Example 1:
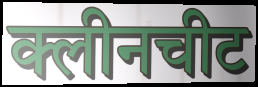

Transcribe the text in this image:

क्लीनचीट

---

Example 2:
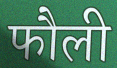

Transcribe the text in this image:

फौली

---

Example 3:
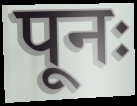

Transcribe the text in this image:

पूनः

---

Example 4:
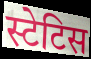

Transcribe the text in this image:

स्टेटिस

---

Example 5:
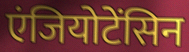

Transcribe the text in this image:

एंजियोटेंसिन